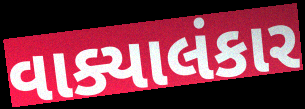
વાક્યાલંકાર